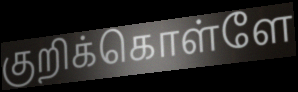
குறிக்கொள்ளே